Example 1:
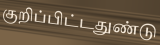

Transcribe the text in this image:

குறிப்பிட்டதுண்டு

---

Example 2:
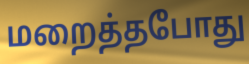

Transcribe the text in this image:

மறைத்தபோது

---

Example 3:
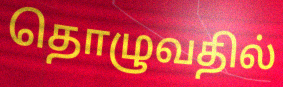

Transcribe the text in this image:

தொழுவதில்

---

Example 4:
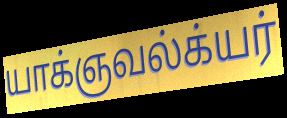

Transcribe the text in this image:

யாக்ஞவல்க்யர்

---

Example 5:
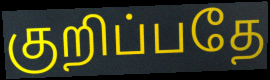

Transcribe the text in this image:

குறிப்பதே